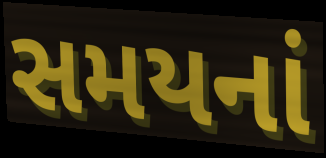
સમયનાં